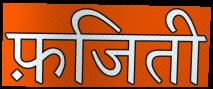
फ़जिती